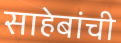
साहेबांची